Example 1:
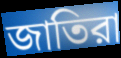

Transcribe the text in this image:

জাতিরা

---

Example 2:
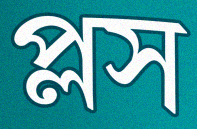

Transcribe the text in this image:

প্লস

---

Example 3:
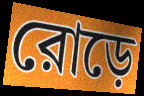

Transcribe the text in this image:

রোড়ে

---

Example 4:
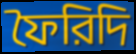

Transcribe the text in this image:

ফৈরিদি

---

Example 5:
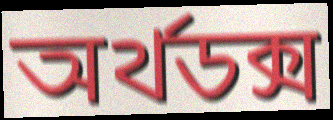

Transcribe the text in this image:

অর্থডক্স